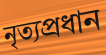
নৃত্যপ্রধান